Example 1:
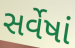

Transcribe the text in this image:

સર્વેષાં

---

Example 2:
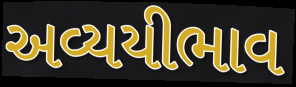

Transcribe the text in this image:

અવ્યયીભાવ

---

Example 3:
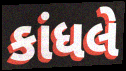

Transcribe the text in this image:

કાંધલે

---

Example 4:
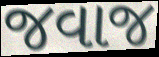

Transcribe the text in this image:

જવાજ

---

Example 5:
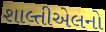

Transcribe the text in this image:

શાલ્તીએલનો